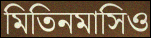
মিতিনমাসিও